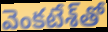
వెంకటేశ్‌తో